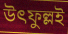
উৎফুল্লই